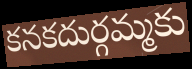
కనకదుర్గమ్మకు